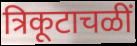
त्रिकूटाचळीं